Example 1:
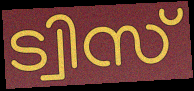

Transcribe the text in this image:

ട്വിസ്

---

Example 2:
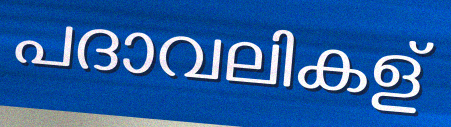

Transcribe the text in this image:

പദാവലികള്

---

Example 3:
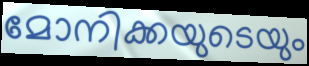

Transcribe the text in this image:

മോനിക്കയുടെയും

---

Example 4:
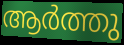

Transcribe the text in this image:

ആർത്തു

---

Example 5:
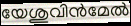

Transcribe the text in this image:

യേശുവിൻമേൽ